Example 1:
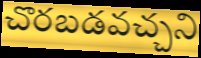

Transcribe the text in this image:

చొరబడవచ్చని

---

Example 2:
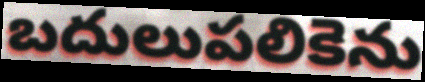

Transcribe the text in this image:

బదులుపలికెను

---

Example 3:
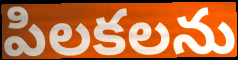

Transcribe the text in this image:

పిలకలను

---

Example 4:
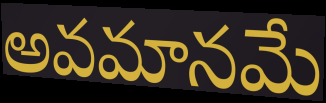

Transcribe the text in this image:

అవమానమే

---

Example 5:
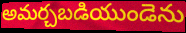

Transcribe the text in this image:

అమర్చబడియుండెను